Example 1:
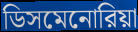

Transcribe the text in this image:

ডিসমেনোরিয়া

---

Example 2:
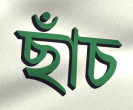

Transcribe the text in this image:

ছাঁচ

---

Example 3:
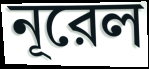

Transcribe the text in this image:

নূরেল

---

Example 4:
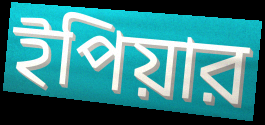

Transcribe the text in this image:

ইপিয়ার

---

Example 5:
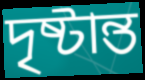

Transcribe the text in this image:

দৃষ্টান্ত